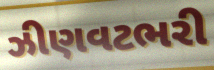
ઝીણવટભરી